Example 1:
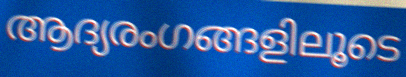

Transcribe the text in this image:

ആദ്യരംഗങ്ങളിലൂടെ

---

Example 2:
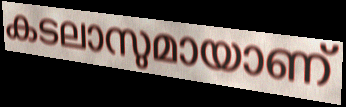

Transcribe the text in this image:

കടലാസുമായാണ്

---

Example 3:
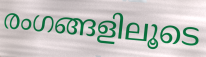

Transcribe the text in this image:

രംഗങ്ങളിലൂടെ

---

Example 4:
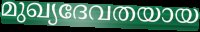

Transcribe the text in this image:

മുഖ്യദേവതയായ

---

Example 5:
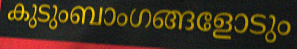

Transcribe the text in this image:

കുടുംബാംഗങ്ങളോടും